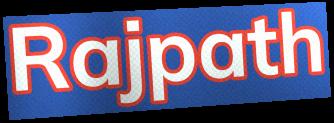
Rajpath